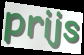
prijs